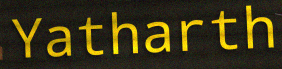
Yatharth